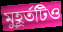
মুহূর্তটিও